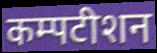
कम्पटीशन